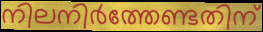
നിലനിർത്തേണ്ടതിന്